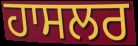
ਹਾਸਲਰ